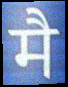
मै